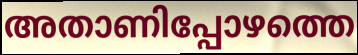
അതാണിപ്പോഴത്തെ